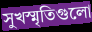
সুখস্মৃতিগুলো